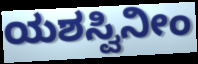
ಯಶಸ್ವಿನೀಂ